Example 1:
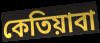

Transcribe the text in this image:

কেতিয়াবা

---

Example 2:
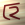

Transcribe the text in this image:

হে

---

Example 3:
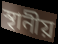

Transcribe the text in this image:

স্থানীয়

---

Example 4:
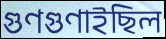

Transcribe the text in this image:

গুণগুণাইছিল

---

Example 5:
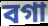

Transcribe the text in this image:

বগা